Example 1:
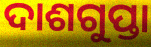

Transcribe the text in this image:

ଦାଶଗୁପ୍ତା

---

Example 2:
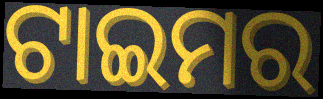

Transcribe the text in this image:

ଟାଇମର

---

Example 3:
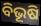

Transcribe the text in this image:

ବିଭୂଷି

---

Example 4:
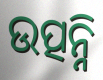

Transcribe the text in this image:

ଉତ୍ପନ୍ନି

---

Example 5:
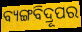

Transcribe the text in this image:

ବ୍ୟଙ୍ଗବିଦ୍ରୂପର